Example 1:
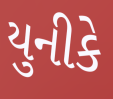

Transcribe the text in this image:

યુનીકે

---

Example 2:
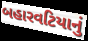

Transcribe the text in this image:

બહારવટિયાનું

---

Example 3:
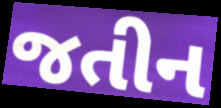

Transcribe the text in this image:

જતીન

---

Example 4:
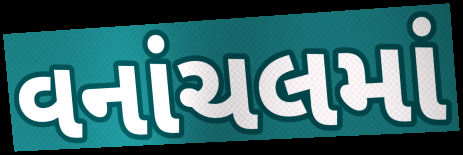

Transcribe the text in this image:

વનાંચલમાં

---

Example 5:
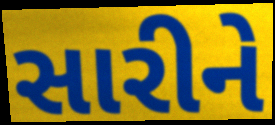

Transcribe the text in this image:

સારીને